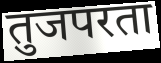
तुजपरता